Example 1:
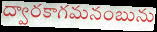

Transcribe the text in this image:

ద్వారకాగమనంబును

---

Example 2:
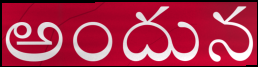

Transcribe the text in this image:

అందున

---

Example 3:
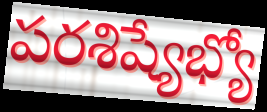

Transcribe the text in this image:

పరశిష్యేభ్యో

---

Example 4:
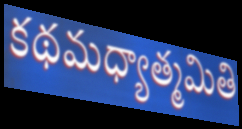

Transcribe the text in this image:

కథమధ్యాత్మమితి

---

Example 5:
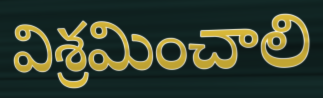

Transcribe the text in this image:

విశ్రమించాలి